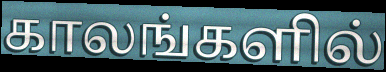
காலங்களில்